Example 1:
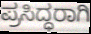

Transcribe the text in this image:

ಪ್ರಸಿದ್ಧರಾಗಿ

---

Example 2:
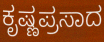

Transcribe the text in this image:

ಕೃಷ್ಣಪ್ರಸಾದ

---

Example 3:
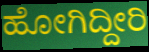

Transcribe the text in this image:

ಹೋಗಿದ್ದೀರಿ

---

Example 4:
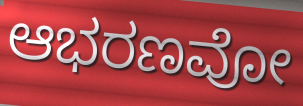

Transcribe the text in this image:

ಆಭರಣವೋ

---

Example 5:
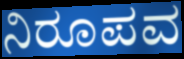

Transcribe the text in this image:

ನಿರೂಪವ